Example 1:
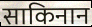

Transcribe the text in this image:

साकिनान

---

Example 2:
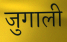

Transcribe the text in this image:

जुगाली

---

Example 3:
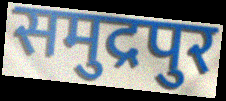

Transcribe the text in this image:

समुद्रपुर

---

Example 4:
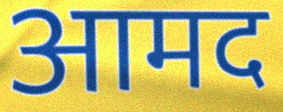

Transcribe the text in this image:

आमद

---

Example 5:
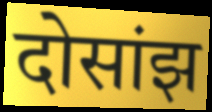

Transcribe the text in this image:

दोसांझ